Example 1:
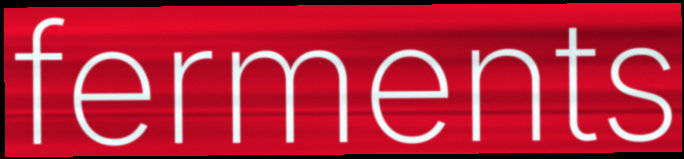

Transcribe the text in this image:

ferments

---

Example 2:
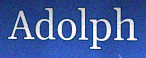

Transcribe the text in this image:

Adolph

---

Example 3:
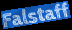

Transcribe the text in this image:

Falstaff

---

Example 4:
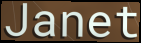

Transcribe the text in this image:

Janet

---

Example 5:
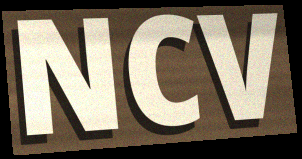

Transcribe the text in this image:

NCV